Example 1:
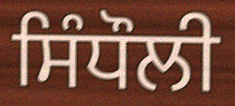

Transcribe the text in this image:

ਸਿੰਧੌਲੀ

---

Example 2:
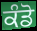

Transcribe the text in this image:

ਕੰਡੋ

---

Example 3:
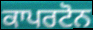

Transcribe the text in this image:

ਕਾਪਰਟੋਨ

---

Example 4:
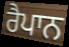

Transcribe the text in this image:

ਰੈਪਾਨ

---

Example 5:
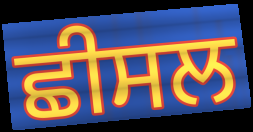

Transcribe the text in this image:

ਛੀਸਲ